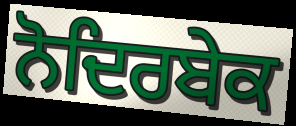
ਨੋਦਿਰਬੇਕ